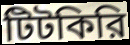
টিটকিরি